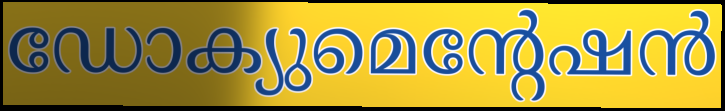
ഡോക്യുമെന്റേഷൻ